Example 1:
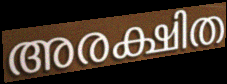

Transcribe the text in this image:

അരക്ഷിത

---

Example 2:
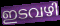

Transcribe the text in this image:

ഇടവഴി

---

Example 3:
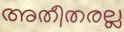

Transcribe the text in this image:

അതീതരല്ല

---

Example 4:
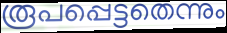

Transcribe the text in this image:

രൂപപ്പെട്ടതെന്നും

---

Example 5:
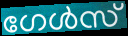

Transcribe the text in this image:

ഗേൾസ്